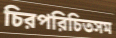
চিরপরিচিতসম